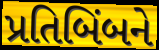
પ્રતિબિંબને